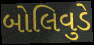
બોલિવુડે